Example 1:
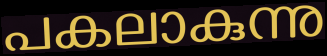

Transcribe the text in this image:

പകലാകുന്നു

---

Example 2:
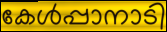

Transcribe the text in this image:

കേൾപ്പാനാടി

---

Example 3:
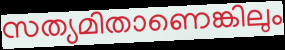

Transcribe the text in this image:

സത്യമിതാണെങ്കിലും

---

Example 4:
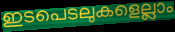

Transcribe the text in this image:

ഇടപെടലുകളെല്ലാം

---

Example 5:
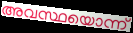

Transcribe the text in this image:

അവസ്ഥയൊന്ന്